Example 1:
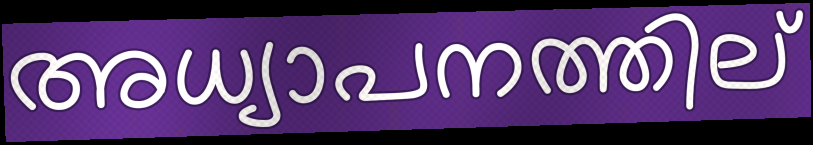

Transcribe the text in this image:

അധ്യാപനത്തില്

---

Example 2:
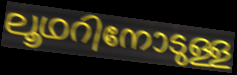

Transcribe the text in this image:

ലൂഥറിനോടുള്ള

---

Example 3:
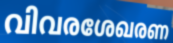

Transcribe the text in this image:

വിവരശേഖരണ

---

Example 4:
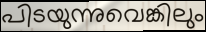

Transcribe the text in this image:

പിടയുന്നുവെങ്കിലും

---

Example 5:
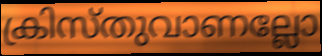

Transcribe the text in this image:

ക്രിസ്തുവാണല്ലോ